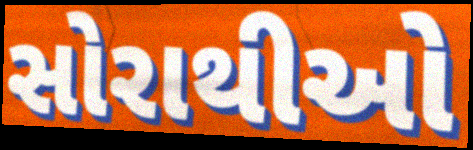
સોરાથીઓ